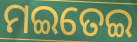
ମଇତେଇ